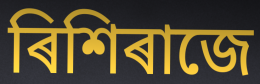
ৰিশিৰাজে